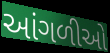
આંગળીઓ